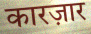
कारज़ार